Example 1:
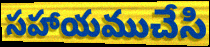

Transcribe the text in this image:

సహాయముచేసి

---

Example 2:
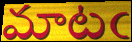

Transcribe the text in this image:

మాటఁ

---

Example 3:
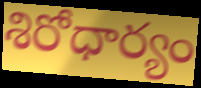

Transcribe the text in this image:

శిరోధార్యం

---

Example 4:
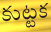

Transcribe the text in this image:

కుట్టక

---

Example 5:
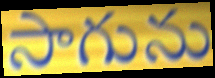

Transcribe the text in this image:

సాగును